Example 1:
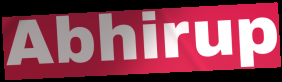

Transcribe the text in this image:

Abhirup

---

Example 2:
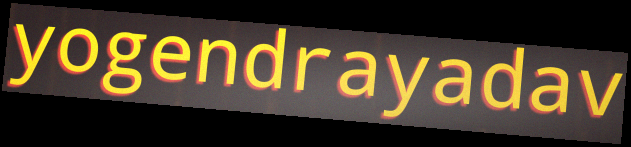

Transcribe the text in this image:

yogendrayadav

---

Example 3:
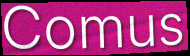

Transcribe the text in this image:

Comus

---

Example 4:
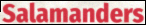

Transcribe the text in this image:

Salamanders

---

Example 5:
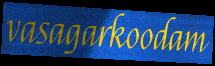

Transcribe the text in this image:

vasagarkoodam